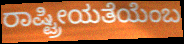
ರಾಷ್ಟ್ರೀಯತೆಯೆಂಬ